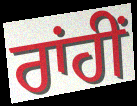
ਰਾਂਹੀਂ